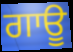
ਗਾਊ